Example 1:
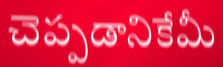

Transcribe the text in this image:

చెప్పడానికేమీ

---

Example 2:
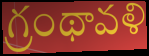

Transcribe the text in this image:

గ్రంథావళి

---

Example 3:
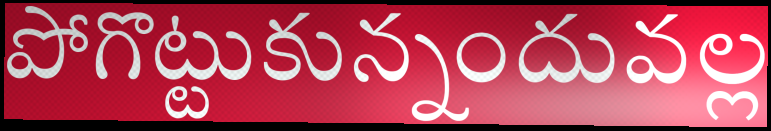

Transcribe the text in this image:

పోగొట్టుకున్నందువల్ల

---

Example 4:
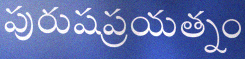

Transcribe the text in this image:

పురుషప్రయత్నం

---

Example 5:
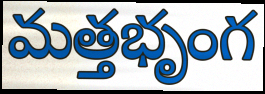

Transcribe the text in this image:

మత్తభృంగ